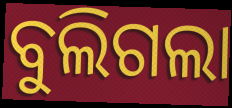
ବୁଲିଗଲା